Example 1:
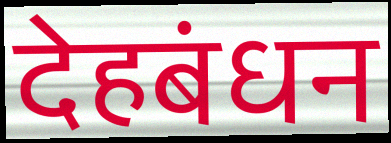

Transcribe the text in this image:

देहबंधन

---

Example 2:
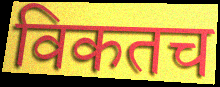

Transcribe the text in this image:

विकतच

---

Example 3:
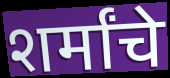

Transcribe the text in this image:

शर्मांचे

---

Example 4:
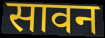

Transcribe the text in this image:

सावन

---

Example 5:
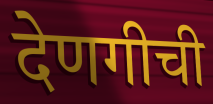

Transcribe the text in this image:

देणगीची